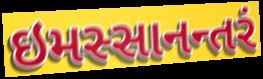
ઇમસ્સાનન્તરં